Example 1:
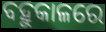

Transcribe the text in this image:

ବହୁକାଳରେ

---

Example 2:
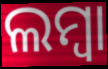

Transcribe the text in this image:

ଲମ୍ୱା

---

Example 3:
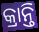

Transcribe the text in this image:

କ୍ରାନ୍ତି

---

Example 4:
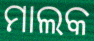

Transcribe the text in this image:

ମାଲକ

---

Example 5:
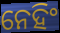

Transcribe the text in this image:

ନେହିଂ